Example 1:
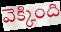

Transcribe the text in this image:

వెక్కింది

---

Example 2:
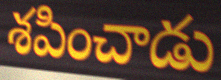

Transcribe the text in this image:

శపించాడు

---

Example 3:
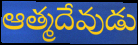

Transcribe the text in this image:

ఆత్మదేవుడు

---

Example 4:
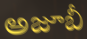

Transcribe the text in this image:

అజూబీ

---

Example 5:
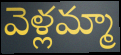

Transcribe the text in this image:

వెళ్లమ్మా